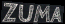
ZUMA